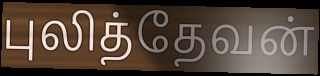
புலித்தேவன்